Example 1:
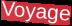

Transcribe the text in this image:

Voyage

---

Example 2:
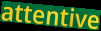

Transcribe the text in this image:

attentive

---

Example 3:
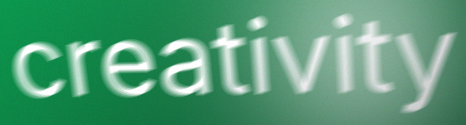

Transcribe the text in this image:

creativity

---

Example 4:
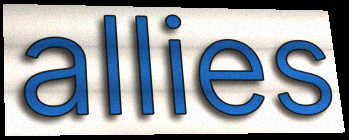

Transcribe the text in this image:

allies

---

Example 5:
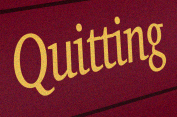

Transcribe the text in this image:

Quitting